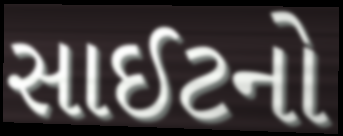
સાઈટનો